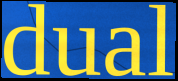
dual